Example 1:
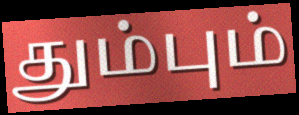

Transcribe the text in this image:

தும்பும்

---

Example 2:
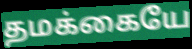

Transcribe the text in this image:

தமக்கையே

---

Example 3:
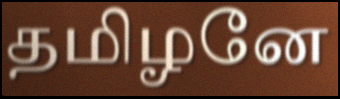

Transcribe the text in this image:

தமிழனே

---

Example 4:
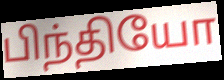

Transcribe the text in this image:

பிந்தியோ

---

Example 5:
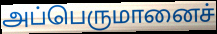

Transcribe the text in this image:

அப்பெருமானைச்